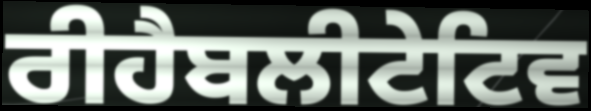
ਰੀਹੈਬਲੀਟੇਟਿਵ